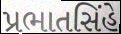
પ્રભાતસિંહે